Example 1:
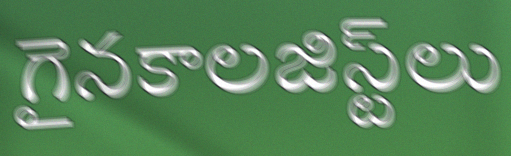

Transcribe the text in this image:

గైనకాలజిస్ట్‌లు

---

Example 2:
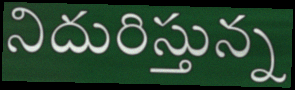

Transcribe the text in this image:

నిదురిస్తున్న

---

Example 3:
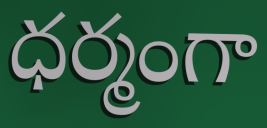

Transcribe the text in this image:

ధర్మంగా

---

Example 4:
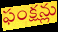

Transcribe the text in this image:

ఫంక్షన్లు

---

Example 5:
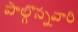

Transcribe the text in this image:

పాల్గొన్నవారి